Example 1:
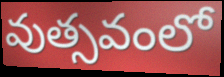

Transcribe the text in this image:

వుత్సవంలో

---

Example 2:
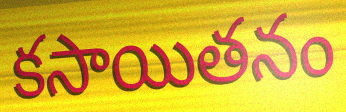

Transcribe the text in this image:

కసాయితనం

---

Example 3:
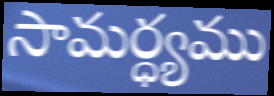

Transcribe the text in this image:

సామర్ధ్యము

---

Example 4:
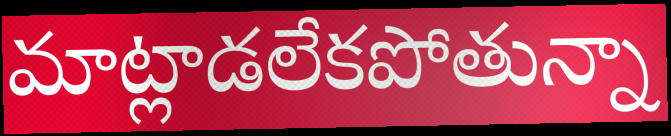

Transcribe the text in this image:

మాట్లాడలేకపోతున్నా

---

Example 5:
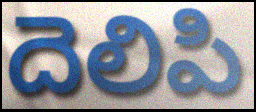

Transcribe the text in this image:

దెలిపి